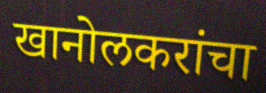
खानोलकरांचा